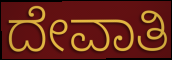
ದೇವಾತಿ